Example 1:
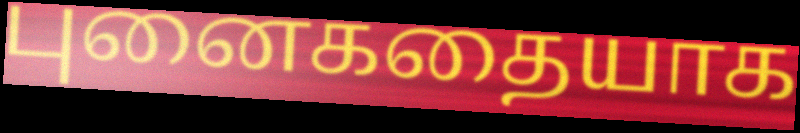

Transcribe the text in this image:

புனைகதையாக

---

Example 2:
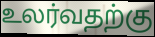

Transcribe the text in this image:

உலர்வதற்கு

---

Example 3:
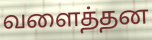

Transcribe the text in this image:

வளைத்தன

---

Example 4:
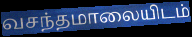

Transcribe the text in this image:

வசந்தமாலையிடம்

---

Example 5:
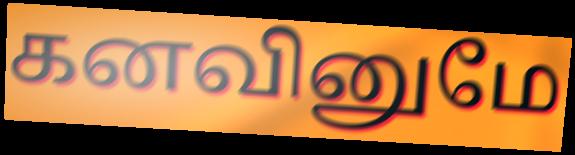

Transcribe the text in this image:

கனவினுமே